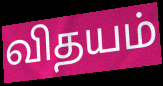
விதயம்